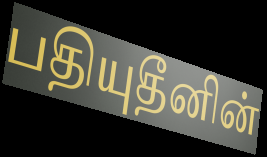
பதியுதீனின்